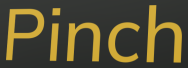
Pinch